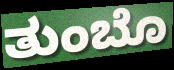
ತುಂಬೊ